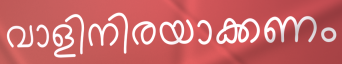
വാളിനിരയാക്കണം